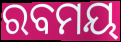
ରବମୟ